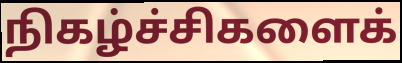
நிகழ்ச்சிகளைக்